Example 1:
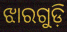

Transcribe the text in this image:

ଝାରଗୁଡ଼ି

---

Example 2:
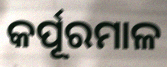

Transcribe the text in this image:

କର୍ପୂରମାଳ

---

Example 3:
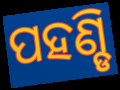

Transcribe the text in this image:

ପହଣ୍ଡି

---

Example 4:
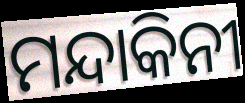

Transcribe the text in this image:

ମନ୍ଦାକିନୀ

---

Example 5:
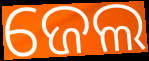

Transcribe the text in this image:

ଜେଲ